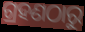
ଗ୍ରହଣଠାରୁ